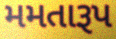
મમતારૂપ